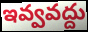
ఇవ్వవద్దు